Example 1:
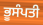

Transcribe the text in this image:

ਭੂਸੰਪਤੀ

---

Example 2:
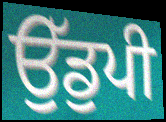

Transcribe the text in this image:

ਉੱਡੁਪੀ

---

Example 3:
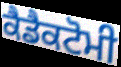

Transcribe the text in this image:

ਕੈਡੈਕਟੋਮੀ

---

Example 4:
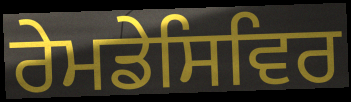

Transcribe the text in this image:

ਰੇਮਡੇਸਿਵਿਰ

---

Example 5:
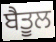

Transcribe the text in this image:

ਬੈਤੂਲ